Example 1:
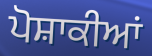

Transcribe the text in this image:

ਪੋਸ਼ਾਕੀਆਂ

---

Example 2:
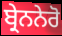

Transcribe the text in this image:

ਬ੍ਰੇਨਨੇਰੋ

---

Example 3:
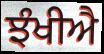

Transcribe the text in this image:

ਝੰਖੀਐ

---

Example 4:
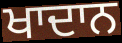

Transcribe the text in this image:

ਖਾਦਾਨ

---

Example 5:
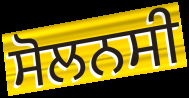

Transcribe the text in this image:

ਸੋਲਨਸੀ